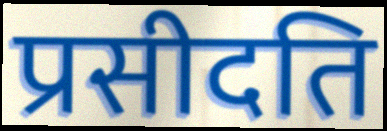
प्रसीदति